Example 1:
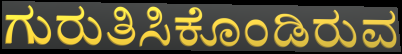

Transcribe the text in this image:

ಗುರುತಿಸಿಕೊಂಡಿರುವ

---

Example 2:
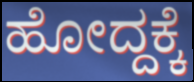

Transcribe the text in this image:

ಹೋದ್ದಕ್ಕೆ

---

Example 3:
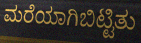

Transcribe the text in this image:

ಮರೆಯಾಗಿಬಿಟ್ಟಿತು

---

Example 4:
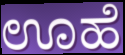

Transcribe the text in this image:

ಊಹೆ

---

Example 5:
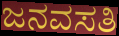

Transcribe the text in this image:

ಜನವಸತಿ